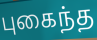
புகைந்த